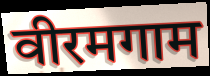
वीरमगाम